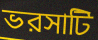
ভরসাটি